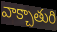
వాక్చాతురి